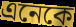
এনেকে